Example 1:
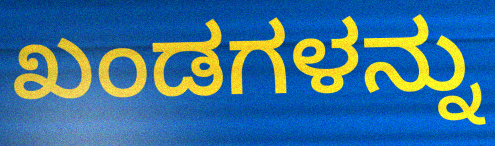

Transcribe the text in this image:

ಖಂಡಗಳನ್ನು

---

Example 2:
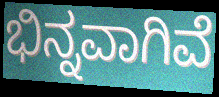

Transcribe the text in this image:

ಭಿನ್ನವಾಗಿವೆ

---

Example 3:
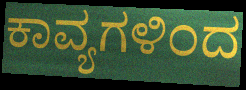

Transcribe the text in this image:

ಕಾವ್ಯಗಳಿಂದ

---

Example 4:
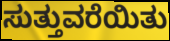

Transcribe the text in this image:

ಸುತ್ತುವರೆಯಿತು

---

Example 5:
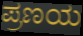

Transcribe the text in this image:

ಪ್ರಣಯ